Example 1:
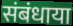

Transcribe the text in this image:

संबंधाया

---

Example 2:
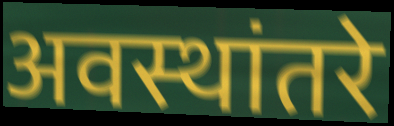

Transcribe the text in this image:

अवस्थांतरे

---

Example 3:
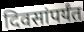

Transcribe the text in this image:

दिवसांपर्यंत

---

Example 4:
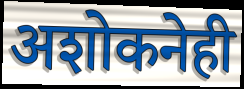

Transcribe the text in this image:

अशोकनेही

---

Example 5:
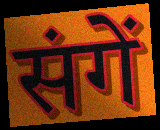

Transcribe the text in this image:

संगें